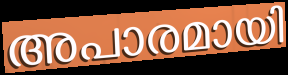
അപാരമായി